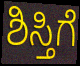
ಶಿಸ್ತಿಗೆ